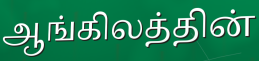
ஆங்கிலத்தின்